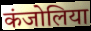
कंजोलिया